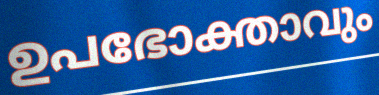
ഉപഭോക്താവും